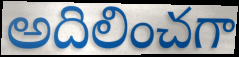
అదిలించగా